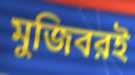
মুজিবরই